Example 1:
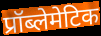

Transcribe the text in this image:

प्रॉब्लेमेटिक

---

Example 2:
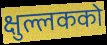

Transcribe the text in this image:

क्षुल्लकको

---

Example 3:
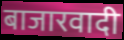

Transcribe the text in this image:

बाजारवादी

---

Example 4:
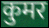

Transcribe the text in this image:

कुमर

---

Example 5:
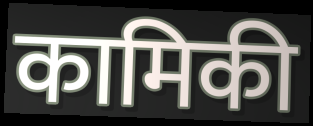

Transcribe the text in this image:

कामिकी